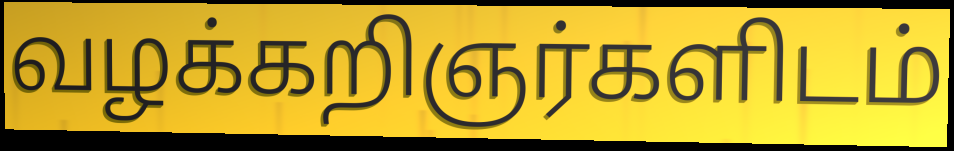
வழக்கறிஞர்களிடம்